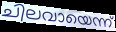
ചിലവായെന്ന്